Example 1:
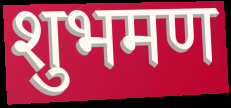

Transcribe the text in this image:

शुभमण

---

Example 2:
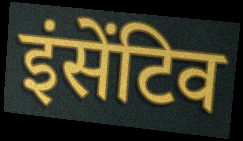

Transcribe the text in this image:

इंसेंटिव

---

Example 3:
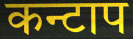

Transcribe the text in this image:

कन्टाप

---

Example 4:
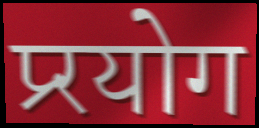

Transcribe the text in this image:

प्र्रयोग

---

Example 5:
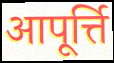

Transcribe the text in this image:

आपूर्त्ति